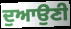
ਦੁਆਉਣੀ